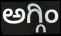
ಅಗ್ಗಿಂ